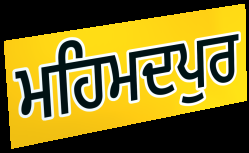
ਮਹਿਮਦਪੁਰ